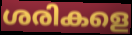
ശരികളെ